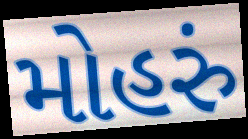
મોહરું